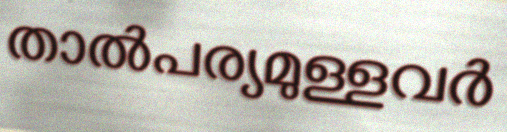
താൽപര്യമുള്ളവർ